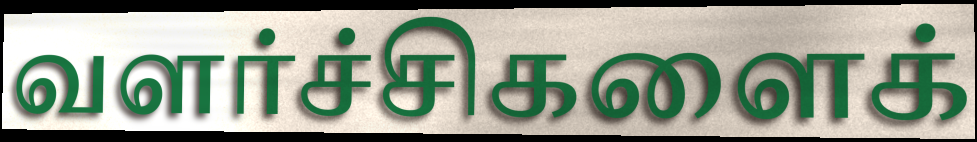
வளர்ச்சிகளைக்